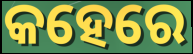
କହେରେ